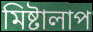
মিষ্টালাপ